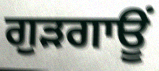
ਗੁੜਗਾਊਂ